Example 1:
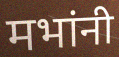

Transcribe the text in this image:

मभांनी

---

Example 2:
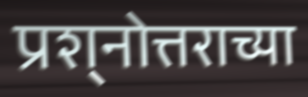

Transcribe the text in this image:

प्रश्नोत्तराच्या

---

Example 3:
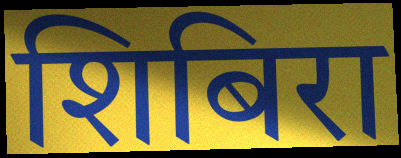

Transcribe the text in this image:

शिबिरा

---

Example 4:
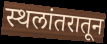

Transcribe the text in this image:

स्थलांतरातून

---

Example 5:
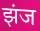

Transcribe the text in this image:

झंज